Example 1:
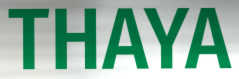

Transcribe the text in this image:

THAYA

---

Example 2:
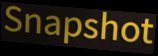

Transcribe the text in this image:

Snapshot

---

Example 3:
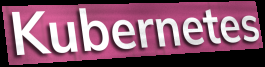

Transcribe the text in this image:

Kubernetes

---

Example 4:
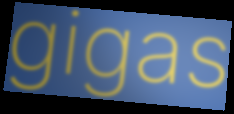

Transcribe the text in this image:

gigas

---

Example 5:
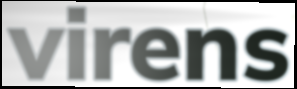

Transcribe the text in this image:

virens